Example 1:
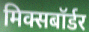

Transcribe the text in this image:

मिक्सबॉर्डर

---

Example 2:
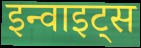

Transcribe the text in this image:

इन्वाइट्स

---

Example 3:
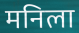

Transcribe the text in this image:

मनिला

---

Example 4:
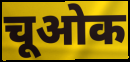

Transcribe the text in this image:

चूओक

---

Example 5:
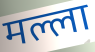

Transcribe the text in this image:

मल्‍ला